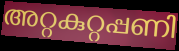
അറ്റകുറ്റപ്പണി